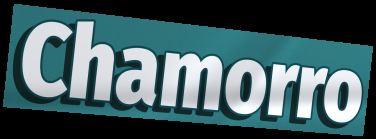
Chamorro